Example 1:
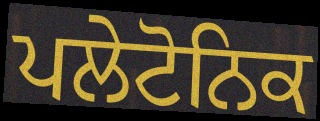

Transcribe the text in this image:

ਪਲੇਟੋਨਿਕ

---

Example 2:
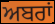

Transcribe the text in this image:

ਅਬਰਾਂ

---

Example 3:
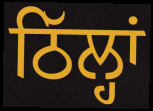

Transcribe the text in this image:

ਠਿੱਲ੍ਹਾਂ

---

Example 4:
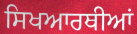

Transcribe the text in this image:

ਸਿਖਆਰਥੀਆਂ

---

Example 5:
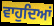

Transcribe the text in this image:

ਵਾਹੁਦਿਆਂ